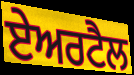
ਏਅਰਟੈਲ